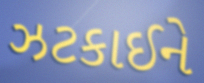
ઝટકાઈને